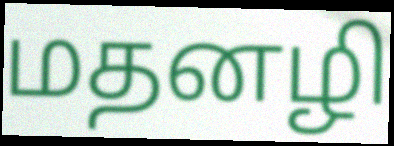
மதனழி